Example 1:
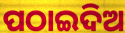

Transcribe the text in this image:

ପଠାଇଦିଅ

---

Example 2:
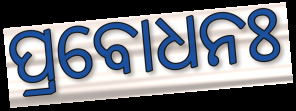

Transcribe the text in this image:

ପ୍ରବୋଧନଃ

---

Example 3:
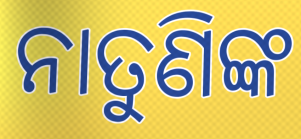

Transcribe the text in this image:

ନାତୁଣିଙ୍କ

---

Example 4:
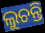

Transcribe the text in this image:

ଲୁଚନ୍ତି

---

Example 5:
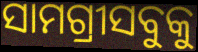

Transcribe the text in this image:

ସାମଗ୍ରୀସବୁକୁ